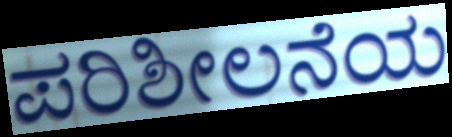
ಪರಿಶೀಲನೆಯ